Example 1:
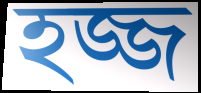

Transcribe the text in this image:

হজ্জ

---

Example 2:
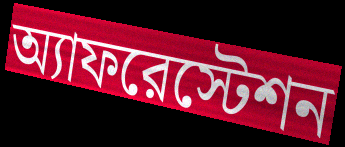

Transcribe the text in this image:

অ্যাফরেস্টেশন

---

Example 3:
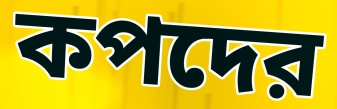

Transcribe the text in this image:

কপদের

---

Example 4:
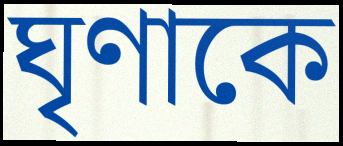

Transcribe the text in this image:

ঘৃণাকে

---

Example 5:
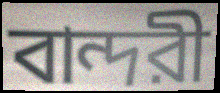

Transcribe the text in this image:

বান্দরী